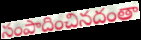
సంపాదించినదంతా